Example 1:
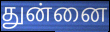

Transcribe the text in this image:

துன்னை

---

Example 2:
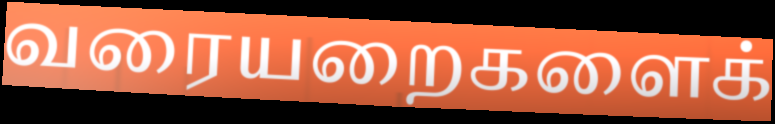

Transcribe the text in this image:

வரையறைகளைக்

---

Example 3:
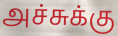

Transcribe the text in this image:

அச்சுக்கு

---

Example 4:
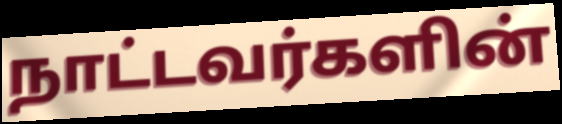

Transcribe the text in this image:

நாட்டவர்களின்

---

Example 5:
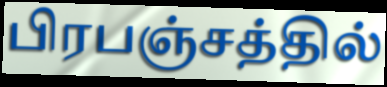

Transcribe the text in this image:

பிரபஞ்சத்தில்